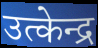
उत्केन्द्र